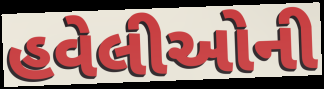
હવેલીઓની